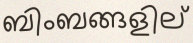
ബിംബങ്ങളില്